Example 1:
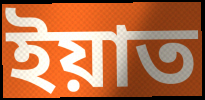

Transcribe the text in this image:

ইয়াত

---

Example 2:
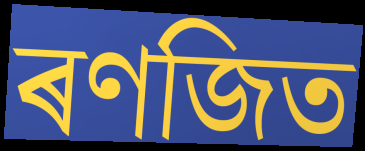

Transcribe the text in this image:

ৰণজিত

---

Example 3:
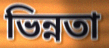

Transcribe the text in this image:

ভিন্নতা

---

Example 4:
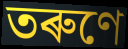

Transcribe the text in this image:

তৰুণে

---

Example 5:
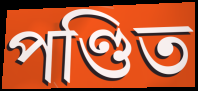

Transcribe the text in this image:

পণ্ডিত